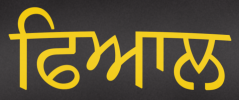
ਫਿਆਲ